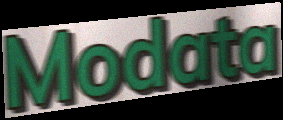
Modata